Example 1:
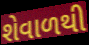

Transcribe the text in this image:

શેવાળથી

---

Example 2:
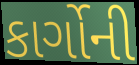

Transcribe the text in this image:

કાર્ગોની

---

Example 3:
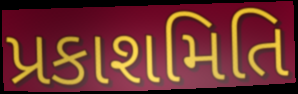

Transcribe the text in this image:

પ્રકાશમિતિ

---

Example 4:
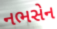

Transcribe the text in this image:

નભસેન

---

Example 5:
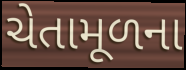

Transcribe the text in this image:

ચેતામૂળના